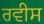
ਰਵੀਸ